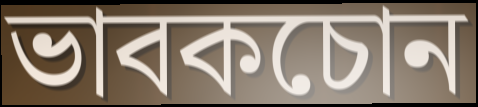
ভাবকচোন